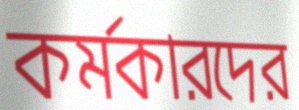
কর্মকারদের